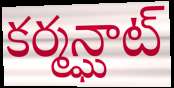
కర్మన్ఘాట్